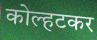
कोल्हटकर